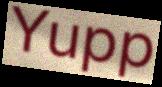
Yupp